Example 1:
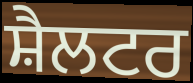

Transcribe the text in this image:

ਸ਼ੈਲਟਰ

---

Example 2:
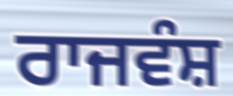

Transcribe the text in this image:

ਰਾਜਵੰਸ਼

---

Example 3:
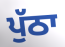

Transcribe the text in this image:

ਪੁੱਠਾ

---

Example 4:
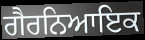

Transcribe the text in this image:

ਗੈਰਨਿਆਇਕ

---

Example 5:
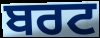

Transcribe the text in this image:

ਬਰਟ